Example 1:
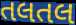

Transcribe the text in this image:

તલતલ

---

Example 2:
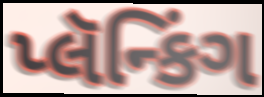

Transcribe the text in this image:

પ્લૅન્કિંગ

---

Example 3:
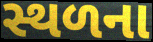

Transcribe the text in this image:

સ્થળના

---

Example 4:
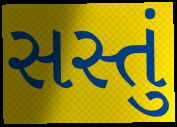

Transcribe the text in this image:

સસ્તું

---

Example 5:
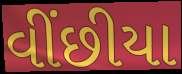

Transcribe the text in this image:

વીંછીયા